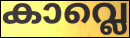
കാവ്ലെ